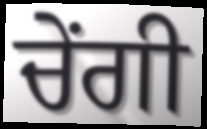
ਚੇਂਗੀ